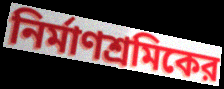
নির্মাণশ্রমিকের